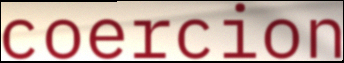
coercion